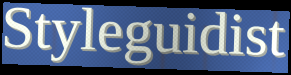
Styleguidist